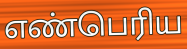
எண்பெரிய